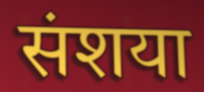
संशया